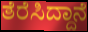
ತೆರೆಸಿದ್ದಾನೆ